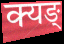
क्यङ्